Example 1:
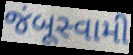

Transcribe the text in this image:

જંબૂસ્વામી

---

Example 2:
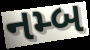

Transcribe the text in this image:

નમ્બ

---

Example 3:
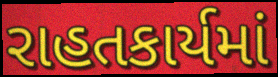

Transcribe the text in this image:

રાહતકાર્યમાં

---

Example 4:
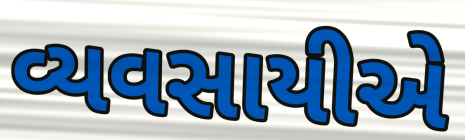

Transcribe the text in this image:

વ્યવસાયીએ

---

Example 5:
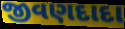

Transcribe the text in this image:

જીવણદાદા